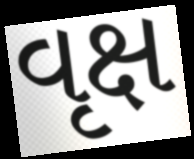
વૃક્ષ